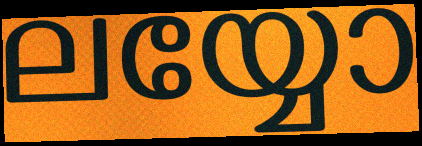
ലയ്യോ